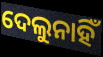
ଦେଲୁନାହିଁ